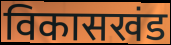
विकासखंड